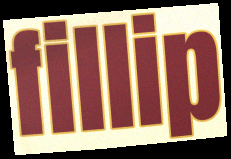
fillip